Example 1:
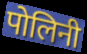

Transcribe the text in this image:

पोलिनी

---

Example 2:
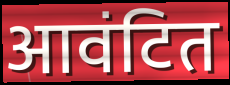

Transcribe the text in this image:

आवंटित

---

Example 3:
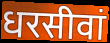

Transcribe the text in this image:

धरसीवां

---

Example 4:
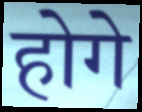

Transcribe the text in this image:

होगे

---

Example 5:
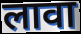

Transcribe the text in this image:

लावा